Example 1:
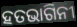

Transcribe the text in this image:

ହତଭାଗିନୀ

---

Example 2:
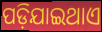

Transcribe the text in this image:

ପଡ଼ିଯାଇଥାଏ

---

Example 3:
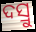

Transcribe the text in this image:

ଦସ୍ରୁ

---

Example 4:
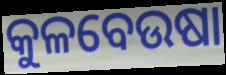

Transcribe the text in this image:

କୁଳବେଉଷା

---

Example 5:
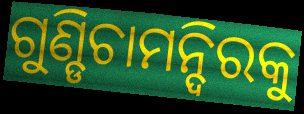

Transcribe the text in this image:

ଗୁଣ୍ଡିଚାମନ୍ଦିରକୁ